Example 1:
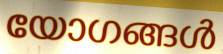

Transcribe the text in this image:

യോഗങ്ങൾ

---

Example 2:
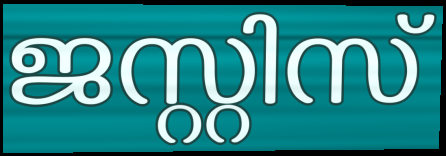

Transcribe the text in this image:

ജസ്റ്റിസ്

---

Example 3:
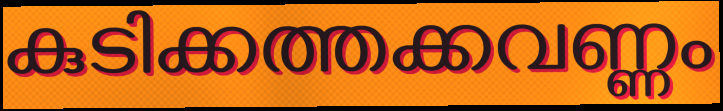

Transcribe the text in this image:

കുടിക്കത്തക്കവണ്ണം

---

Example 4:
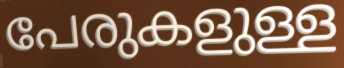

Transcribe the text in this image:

പേരുകളുള്ള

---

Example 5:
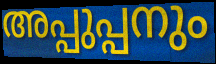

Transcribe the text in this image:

അപ്പുപ്പനും